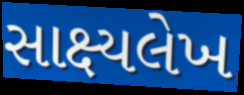
સાક્ષ્યલેખ